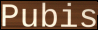
Pubis